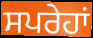
ਸਪਰੇਹਾਂ